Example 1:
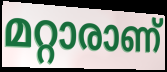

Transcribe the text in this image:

മറ്റാരാണ്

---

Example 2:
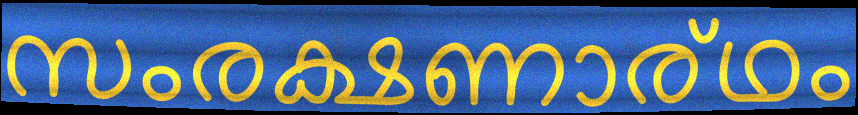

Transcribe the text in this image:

സംരക്ഷണാര്ഥം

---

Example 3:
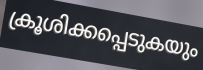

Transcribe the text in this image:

ക്രൂശിക്കപ്പെടുകയും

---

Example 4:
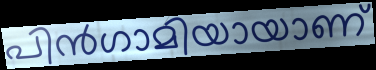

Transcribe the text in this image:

പിൻഗാമിയായാണ്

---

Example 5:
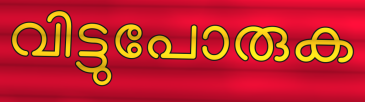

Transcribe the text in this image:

വിട്ടുപോരുക